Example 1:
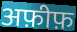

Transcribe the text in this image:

अफ़ीफ़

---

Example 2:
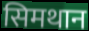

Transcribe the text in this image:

सिमथान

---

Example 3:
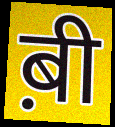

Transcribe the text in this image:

ब़ी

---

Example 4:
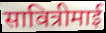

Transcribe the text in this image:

सावित्रीमाई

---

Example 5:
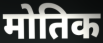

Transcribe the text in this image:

मोतिक